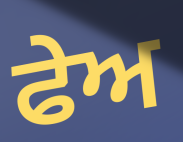
ਫੇਅ